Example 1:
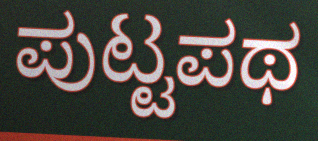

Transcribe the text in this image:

ಪುಟ್ಟಪಥ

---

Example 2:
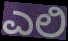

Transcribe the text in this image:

ಎಲಿ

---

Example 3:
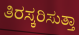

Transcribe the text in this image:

ತಿರಸ್ಕರಿಸುತ್ತಾ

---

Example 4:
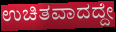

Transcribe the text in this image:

ಉಚಿತವಾದದ್ದೇ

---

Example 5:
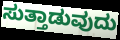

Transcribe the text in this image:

ಸುತ್ತಾಡುವುದು